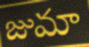
జుమా